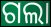
ଗଲା